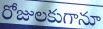
రోజులకుగానూ